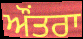
ਔਂਤਰਾ